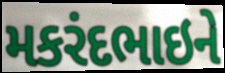
મકરંદભાઇને